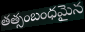
తత్సంబంధమైన